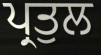
ਪ੍ਰਤੁਲ